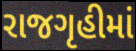
રાજગૃહીમાં